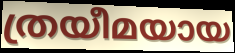
ത്രയീമയായ